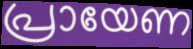
പ്രായേണ